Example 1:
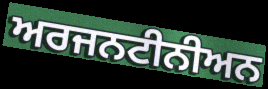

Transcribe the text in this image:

ਅਰਜਨਟੀਨੀਅਨ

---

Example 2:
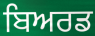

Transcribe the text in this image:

ਬਿਅਰਡ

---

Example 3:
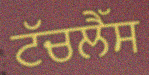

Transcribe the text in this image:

ਟੱਚਲੈੱਸ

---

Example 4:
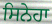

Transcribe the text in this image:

ਸਿਨੇਹਾ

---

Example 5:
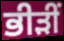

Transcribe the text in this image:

ਭੀੜੀਂ